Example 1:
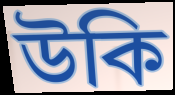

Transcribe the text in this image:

উকি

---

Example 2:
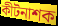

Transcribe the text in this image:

কীটনাশক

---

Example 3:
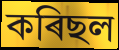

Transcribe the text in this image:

কৰিছল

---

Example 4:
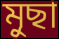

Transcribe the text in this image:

মুছা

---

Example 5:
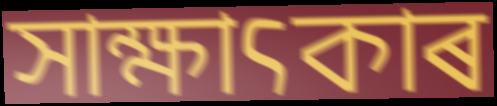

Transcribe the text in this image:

সাক্ষাৎকাৰ